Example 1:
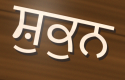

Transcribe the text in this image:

ਸ਼ੁਕੁਨ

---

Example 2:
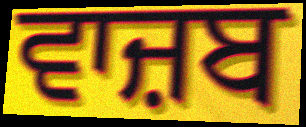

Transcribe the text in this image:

ਵਾਜ਼ਬ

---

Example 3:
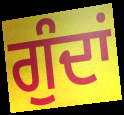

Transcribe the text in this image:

ਗੁੰਦਾਂ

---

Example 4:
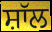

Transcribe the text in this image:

ਸ਼ਾੱਲ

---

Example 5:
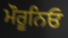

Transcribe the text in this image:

ਮੌਰੂਨਿਓ